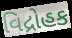
વિદ્રોહક